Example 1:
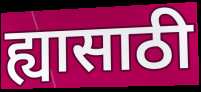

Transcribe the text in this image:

ह्यासाठी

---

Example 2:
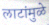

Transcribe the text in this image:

लाटांमुळे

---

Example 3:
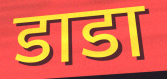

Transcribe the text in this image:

डाडा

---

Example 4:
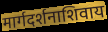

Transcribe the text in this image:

मार्गदर्शनाशिवाय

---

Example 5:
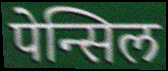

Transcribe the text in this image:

पेन्सिल